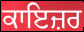
ਕਾਇਜ਼ਰ